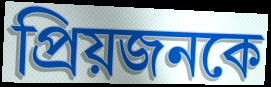
প্রিয়জনকে